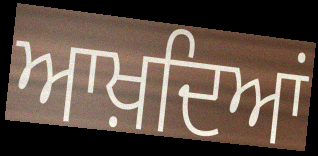
ਆਖ਼ਦਿਆਂ